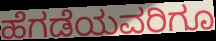
ಹೆಗಡೆಯವರಿಗೂ